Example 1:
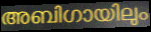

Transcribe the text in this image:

അബിഗായിലും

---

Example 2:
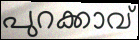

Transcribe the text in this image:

പുറക്കാവ്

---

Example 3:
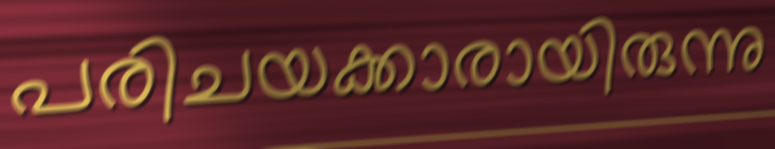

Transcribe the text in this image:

പരിചയക്കാരായിരുന്നു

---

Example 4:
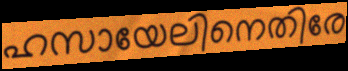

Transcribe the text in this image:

ഹസായേലിനെതിരേ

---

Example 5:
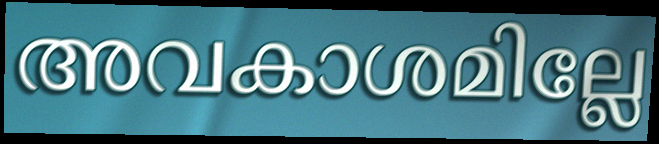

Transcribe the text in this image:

അവകാശമില്ലേ